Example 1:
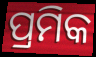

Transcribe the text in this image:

ପ୍ରମିକ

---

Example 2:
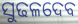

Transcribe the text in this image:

ସୁଢଳଦେବ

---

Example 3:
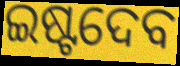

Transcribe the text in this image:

ଇଷ୍ଟଦେବ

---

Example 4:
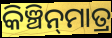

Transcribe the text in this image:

କିଞ୍ଚିନ୍‍ମାତ୍ର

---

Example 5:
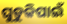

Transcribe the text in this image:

ଘୁଡୁକିପାଇଁ